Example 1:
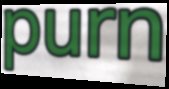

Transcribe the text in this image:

purn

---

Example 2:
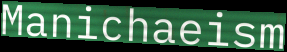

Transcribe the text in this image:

Manichaeism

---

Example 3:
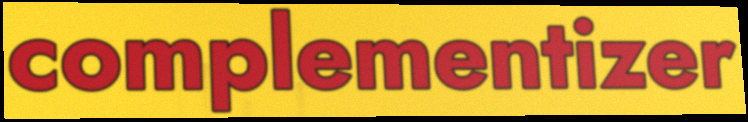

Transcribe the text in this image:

complementizer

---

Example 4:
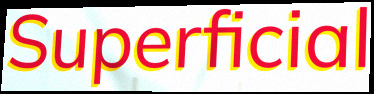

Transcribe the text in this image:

Superficial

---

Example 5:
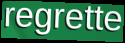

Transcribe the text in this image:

regrette